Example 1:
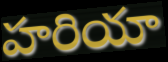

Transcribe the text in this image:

హరియా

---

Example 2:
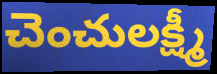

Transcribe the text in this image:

చెంచులక్ష్మీ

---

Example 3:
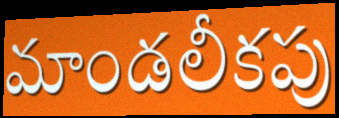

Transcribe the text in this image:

మాండలీకపు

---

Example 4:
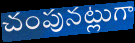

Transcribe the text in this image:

చంపునట్లుగా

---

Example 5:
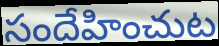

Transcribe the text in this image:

సందేహించుట